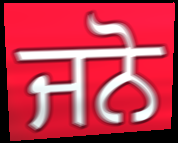
ਜਨੋ